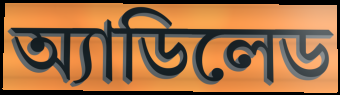
অ্যাডিলেড